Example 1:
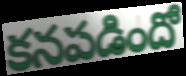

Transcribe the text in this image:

కనపడిందో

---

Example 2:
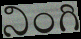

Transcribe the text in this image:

నింగి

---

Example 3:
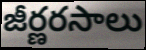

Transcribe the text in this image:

జీర్ణరసాలు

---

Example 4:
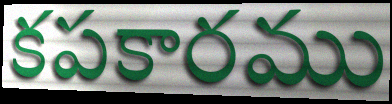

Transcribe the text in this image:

కపకారము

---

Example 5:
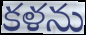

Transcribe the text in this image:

కళను